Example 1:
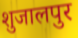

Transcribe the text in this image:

शुजालपुर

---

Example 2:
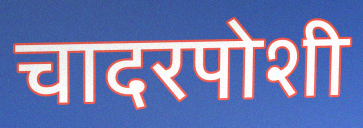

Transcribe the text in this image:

चादरपोशी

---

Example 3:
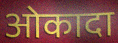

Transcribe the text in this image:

ओकादा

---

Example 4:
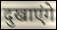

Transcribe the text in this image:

दुखाएंगे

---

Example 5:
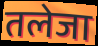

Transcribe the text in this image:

तलेजा